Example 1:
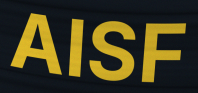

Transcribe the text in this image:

AISF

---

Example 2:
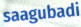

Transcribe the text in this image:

saagubadi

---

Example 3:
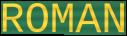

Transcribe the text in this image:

ROMAN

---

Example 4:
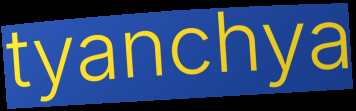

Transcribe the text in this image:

tyanchya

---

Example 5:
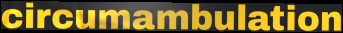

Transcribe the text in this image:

circumambulation